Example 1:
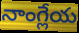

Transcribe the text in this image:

నాంగ్లేయ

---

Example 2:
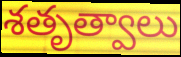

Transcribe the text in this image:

శతృత్వాలు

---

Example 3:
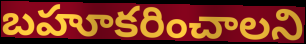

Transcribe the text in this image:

బహూకరించాలని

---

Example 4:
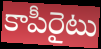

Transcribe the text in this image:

కాపీరైటు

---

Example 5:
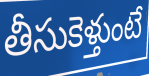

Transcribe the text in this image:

తీసుకెళ్తుంటే